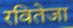
रवितेजा